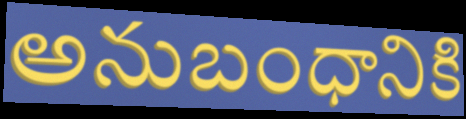
అనుబంధానికి